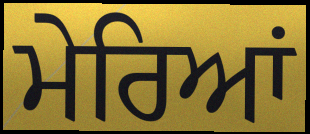
ਮੇਰਿਆਂ